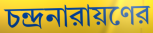
চন্দ্রনারায়ণের